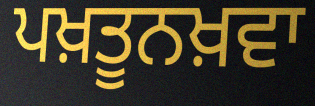
ਪਖ਼ਤੂਨਖ਼ਵਾ